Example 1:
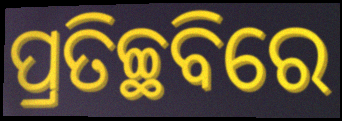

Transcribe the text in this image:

ପ୍ରତିଚ୍ଛବିରେ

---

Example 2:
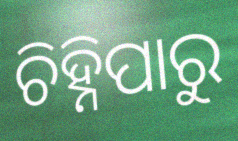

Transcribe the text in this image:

ଚିହ୍ନିପାରୁ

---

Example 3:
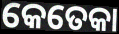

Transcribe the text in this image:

କେତେକା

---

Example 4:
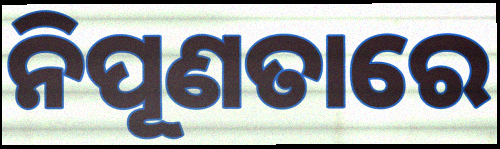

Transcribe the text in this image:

ନିପୂଣତାରେ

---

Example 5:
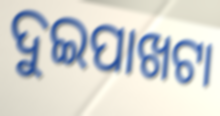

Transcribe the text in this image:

ଦୁଇପାଖଟା